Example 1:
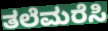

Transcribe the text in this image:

ತಲೆಮರೆಸಿ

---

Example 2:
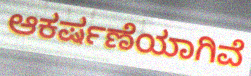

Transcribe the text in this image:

ಆಕರ್ಷಣೆಯಾಗಿವೆ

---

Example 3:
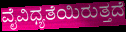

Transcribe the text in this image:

ವೈವಿಧ್ಯತೆಯಿರುತ್ತದೆ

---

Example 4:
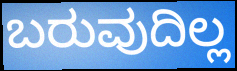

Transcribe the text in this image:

ಬರುವುದಿಲ್ಲ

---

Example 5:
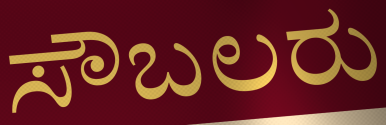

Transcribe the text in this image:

ಸೌಬಲರು